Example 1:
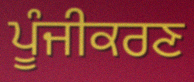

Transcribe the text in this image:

ਪੂੰਜੀਕਰਣ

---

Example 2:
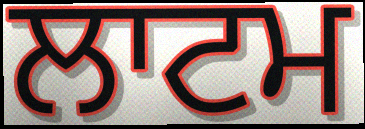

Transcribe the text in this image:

ਲਾਟਮ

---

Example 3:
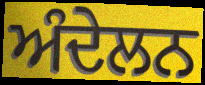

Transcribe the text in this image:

ਅੰਦੇਲਨ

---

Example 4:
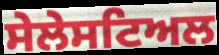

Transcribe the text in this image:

ਸੇਲੇਸਟਿਅਲ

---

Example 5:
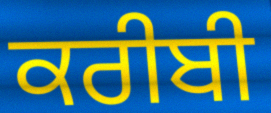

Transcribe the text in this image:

ਕਰੀਬੀ